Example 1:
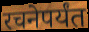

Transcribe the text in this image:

रचनेपर्यंत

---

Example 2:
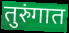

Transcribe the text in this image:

तुरुंगात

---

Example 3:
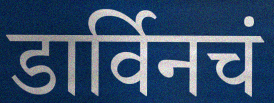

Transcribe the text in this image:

डार्विनचं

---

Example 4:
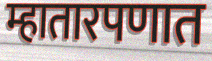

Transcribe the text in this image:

म्हातारपणात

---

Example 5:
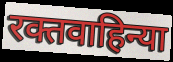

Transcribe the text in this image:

रक्तवाहिन्या